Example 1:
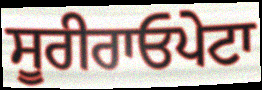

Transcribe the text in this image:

ਸੂਰੀਰਾਓਪੇਟਾ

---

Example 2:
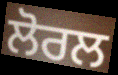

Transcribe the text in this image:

ਲੋਰਲ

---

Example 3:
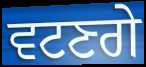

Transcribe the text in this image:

ਵਟਣਗੇ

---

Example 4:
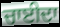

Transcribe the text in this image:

ਚਾਈਦਾ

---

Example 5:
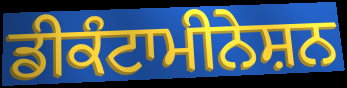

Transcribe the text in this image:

ਡੀਕੰਟਾਮੀਨੇਸ਼ਨ